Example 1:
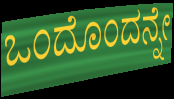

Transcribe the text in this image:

ಒಂದೊಂದನ್ನೇ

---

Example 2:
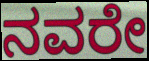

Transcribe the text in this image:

ನವರೇ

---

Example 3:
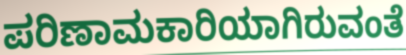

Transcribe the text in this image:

ಪರಿಣಾಮಕಾರಿಯಾಗಿರುವಂತೆ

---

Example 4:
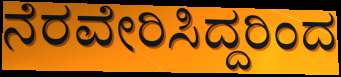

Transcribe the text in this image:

ನೆರವೇರಿಸಿದ್ದರಿಂದ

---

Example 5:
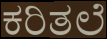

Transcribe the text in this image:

ಕರಿತಲೆ